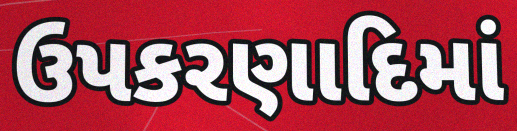
ઉપકરણાદિમાં